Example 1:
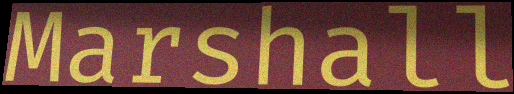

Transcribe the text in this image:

Marshall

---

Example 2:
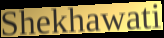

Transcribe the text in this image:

Shekhawati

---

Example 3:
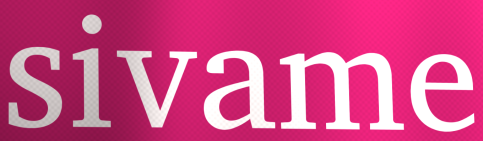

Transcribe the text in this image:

sivame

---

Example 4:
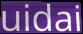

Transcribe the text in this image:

uidai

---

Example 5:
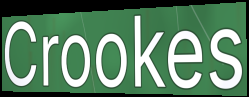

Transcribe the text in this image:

Crookes